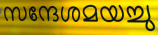
സന്ദേശമയച്ചു